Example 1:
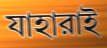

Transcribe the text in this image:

যাহারাই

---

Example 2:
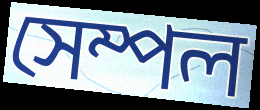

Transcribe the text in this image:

সেম্পল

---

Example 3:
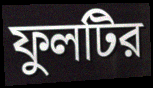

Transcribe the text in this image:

ফুলটির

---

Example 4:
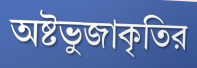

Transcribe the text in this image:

অষ্টভুজাকৃতির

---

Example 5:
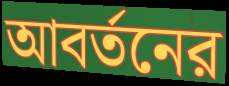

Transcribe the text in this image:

আবর্তনের